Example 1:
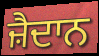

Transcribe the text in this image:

ਜ਼ੈਦਾਨ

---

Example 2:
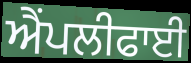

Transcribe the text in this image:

ਐਂਪਲੀਫਾਈ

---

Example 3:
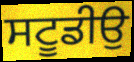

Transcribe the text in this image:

ਸਟੂਡੀਉ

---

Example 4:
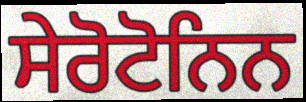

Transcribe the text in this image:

ਸੇਰੋਟੋਨਿਨ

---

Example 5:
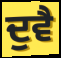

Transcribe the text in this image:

ਦੁਵੈ